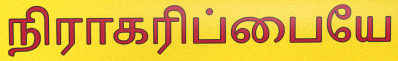
நிராகரிப்பையே